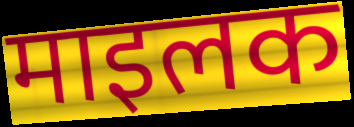
माइलक